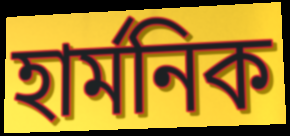
হার্মনিক